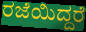
ರಜೆಯಿದ್ದರೆ